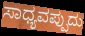
ಸಾಧ್ಯವಪ್ಪುದು